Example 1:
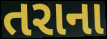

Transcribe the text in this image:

તરાના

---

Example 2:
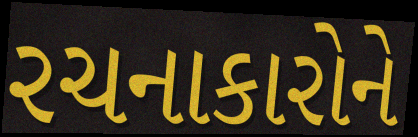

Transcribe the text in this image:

રચનાકારોને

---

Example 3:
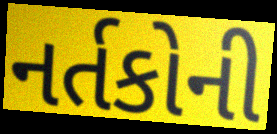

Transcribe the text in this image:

નર્તકોની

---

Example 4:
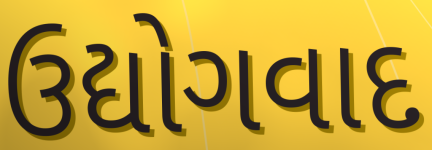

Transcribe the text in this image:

ઉદ્યોગવાદ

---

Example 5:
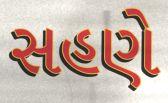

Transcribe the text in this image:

સહણે